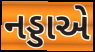
નડ્ડાએ